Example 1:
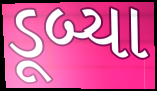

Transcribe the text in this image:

ડૂબ્યા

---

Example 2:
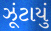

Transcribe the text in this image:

ઝૂંટાયું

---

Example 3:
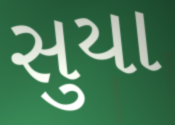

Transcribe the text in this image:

સુયા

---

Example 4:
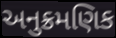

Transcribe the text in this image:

અનુક્રમણિક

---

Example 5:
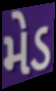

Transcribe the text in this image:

મેડ